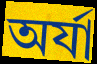
অর্যা